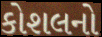
કોશલનો